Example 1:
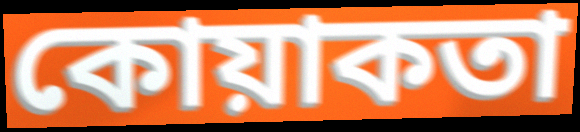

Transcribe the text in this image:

কোয়াকতা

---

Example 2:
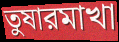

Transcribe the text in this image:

তুষারমাখা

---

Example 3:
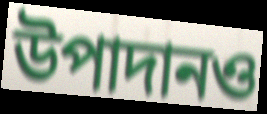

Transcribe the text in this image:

উপাদানও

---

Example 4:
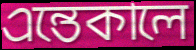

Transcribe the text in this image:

এন্তেকালে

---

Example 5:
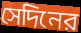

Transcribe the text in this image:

সেদিনের